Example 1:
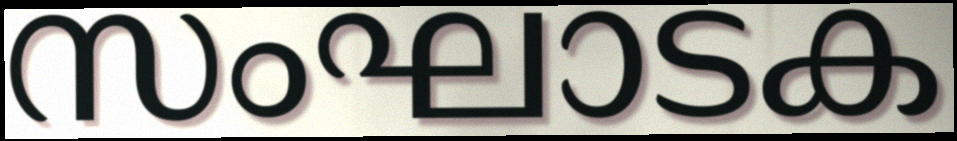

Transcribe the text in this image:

സംഘാടക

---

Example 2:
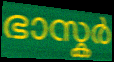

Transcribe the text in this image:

ഭാസ്കർ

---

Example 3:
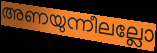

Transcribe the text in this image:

അണയുന്നീലല്ലോ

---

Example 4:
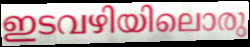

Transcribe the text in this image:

ഇടവഴിയിലൊരു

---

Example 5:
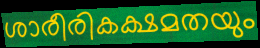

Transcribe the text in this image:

ശാരീരികക്ഷമതയും